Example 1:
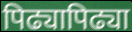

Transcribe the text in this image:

पिढ्यापिढ्या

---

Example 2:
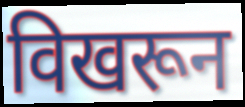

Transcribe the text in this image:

विखरून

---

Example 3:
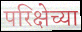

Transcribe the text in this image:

परिक्षेच्या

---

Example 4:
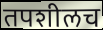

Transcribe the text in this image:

तपशीलच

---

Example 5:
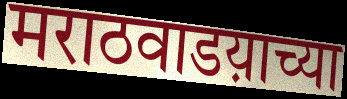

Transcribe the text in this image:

मराठवाडय़ाच्या